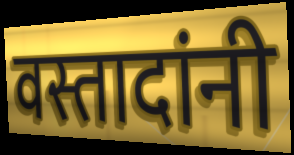
वस्तादांनी